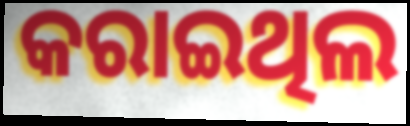
କରାଇଥିଲ